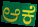
ಆಕೆ